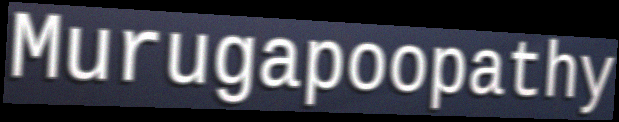
Murugapoopathy